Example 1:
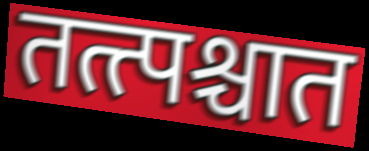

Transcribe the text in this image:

तत्त्पश्चात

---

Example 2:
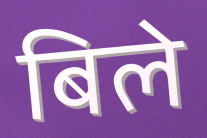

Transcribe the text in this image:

बिले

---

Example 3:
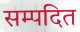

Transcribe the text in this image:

सम्पदित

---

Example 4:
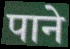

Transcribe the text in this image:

पाने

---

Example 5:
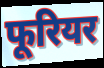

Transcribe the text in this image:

फूरियर